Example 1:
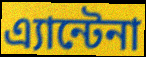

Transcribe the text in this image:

এ্যান্টেনা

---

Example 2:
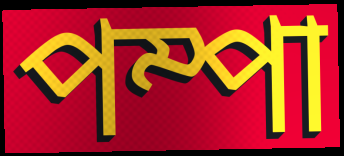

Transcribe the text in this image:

পম্পা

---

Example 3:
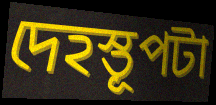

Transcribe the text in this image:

দেহস্তূপটা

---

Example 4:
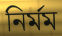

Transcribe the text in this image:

নির্মম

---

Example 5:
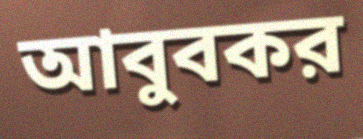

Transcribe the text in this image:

আবুবকর